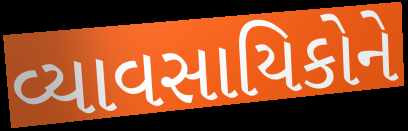
વ્યાવસાયિકોને